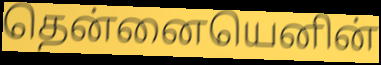
தென்னையெனின்